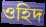
ওহিদ